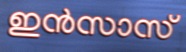
ഇൻസാസ്